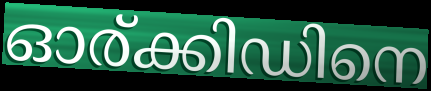
ഓര്ക്കിഡിനെ